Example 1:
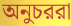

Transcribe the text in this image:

অনুচররা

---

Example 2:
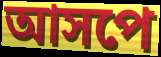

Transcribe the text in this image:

আসপে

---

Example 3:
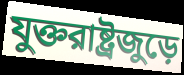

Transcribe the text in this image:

যুক্তরাষ্ট্রজুড়ে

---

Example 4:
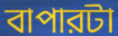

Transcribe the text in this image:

বাপারটা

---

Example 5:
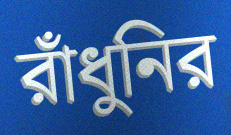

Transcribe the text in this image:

রাঁধুনির